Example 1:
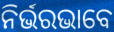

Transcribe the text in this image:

ନିର୍ଭରଭାବେ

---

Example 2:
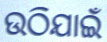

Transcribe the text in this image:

ଉଠିଯାଇଁ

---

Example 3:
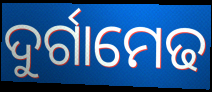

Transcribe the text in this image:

ଦୁର୍ଗାମେଢ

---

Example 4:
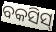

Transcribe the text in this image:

ବକସିସ୍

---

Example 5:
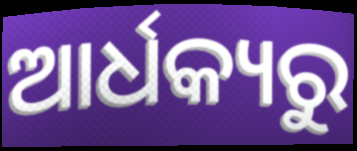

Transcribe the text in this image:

ଆର୍ଧକ୍ୟରୁ